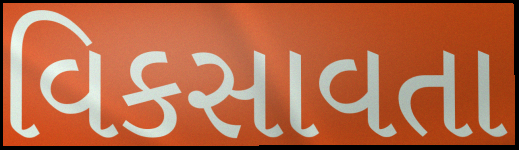
વિકસાવતા